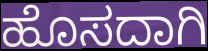
ಹೊಸದಾಗಿ